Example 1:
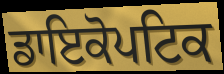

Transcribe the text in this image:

ਡਾਇਕੋਪਟਿਕ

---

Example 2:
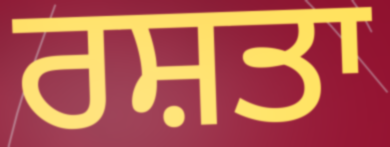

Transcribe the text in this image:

ਰਸ਼ਤਾ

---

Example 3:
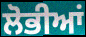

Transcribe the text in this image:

ਲੋਭੀਆਂ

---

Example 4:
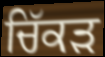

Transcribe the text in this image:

ਚਿੱਕੜ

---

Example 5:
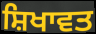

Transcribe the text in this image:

ਸ਼ਿਖਾਵਤ